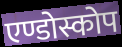
एण्डोस्कोप